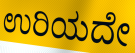
ಉರಿಯದೇ